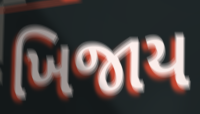
ખિજાય